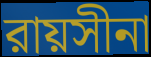
রায়সীনা